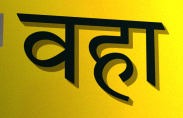
वहा